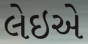
લેઇએ